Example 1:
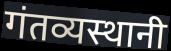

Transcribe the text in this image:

गंतव्यस्थानी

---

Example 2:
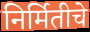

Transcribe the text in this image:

निर्मितीचे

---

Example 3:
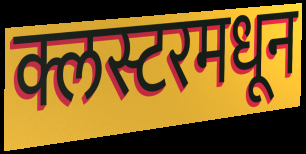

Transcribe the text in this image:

क्लस्टरमधून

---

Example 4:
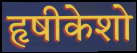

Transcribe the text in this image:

हृषीकेशो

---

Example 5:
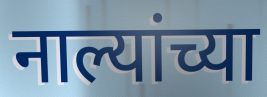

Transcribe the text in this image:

नाल्यांच्या